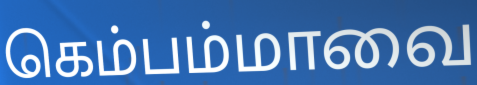
கெம்பம்மாவை